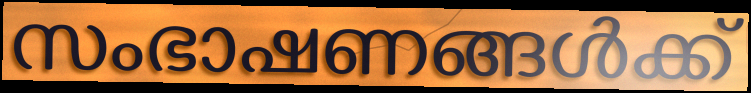
സംഭാഷണങ്ങൾക്ക്